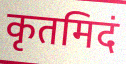
कृतमिदं